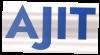
AJIT